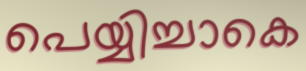
പെയ്യിച്ചാകെ